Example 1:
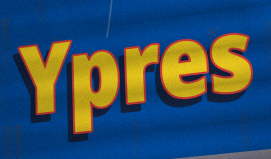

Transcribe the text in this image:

Ypres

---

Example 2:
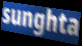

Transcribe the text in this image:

sunghta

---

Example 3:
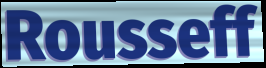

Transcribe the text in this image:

Rousseff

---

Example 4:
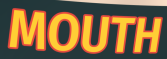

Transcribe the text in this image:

MOUTH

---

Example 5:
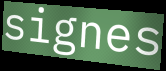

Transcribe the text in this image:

signes